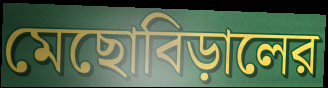
মেছোবিড়ালের